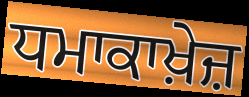
ਧਮਾਕਾਖ਼ੇਜ਼